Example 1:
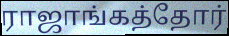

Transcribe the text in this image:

ராஜாங்கத்தோர்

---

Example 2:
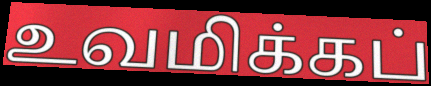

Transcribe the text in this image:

உவமிக்கப்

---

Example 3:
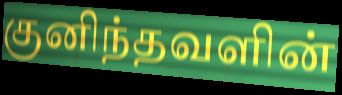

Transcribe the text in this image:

குனிந்தவளின்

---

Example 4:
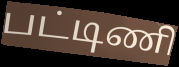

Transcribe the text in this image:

பட்டிணி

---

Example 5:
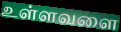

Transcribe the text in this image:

உள்ளவளை